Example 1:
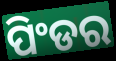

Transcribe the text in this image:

ପିଂଡର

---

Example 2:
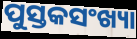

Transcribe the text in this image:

ପୁସ୍ତକସଂଖ୍ୟା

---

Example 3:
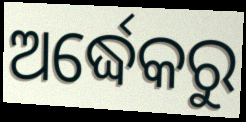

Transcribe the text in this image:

ଅର୍ଦ୍ଧେକରୁ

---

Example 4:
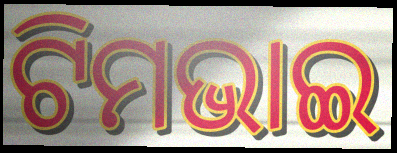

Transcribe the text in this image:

ଟିମଭାଇ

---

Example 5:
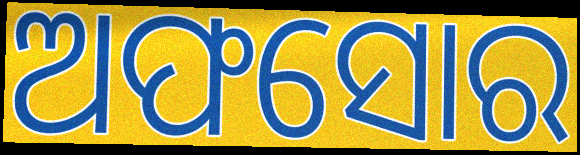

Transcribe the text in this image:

ଅଫସୋର